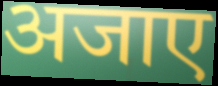
अजाए